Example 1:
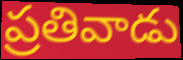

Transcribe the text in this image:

ప్రతివాడు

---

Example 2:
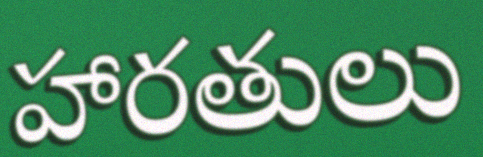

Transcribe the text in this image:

హారతులు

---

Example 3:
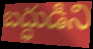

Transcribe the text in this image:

బద్ధుడిని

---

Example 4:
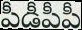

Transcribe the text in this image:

పీడీపీపీ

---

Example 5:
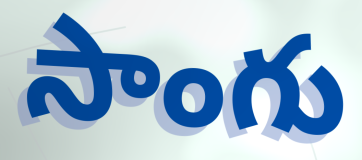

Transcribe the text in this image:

సాంగు